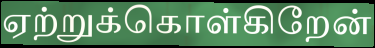
ஏற்றுக்கொள்கிறேன்